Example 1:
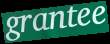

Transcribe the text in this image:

grantee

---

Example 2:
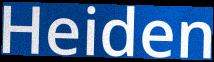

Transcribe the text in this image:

Heiden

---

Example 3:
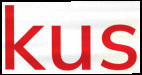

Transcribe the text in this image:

kus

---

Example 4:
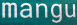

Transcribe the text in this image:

mangu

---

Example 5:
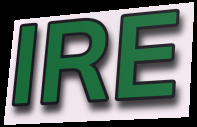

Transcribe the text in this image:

IRE